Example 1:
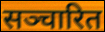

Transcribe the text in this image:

सञ्चारित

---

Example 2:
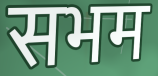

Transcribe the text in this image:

सभम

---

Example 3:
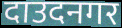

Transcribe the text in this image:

दाउदनगर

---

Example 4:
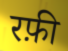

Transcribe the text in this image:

रफ़ी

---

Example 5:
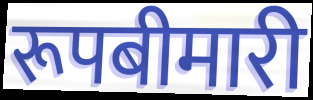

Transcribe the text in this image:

रूपबीमारी